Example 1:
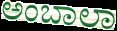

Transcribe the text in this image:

ಅಂಬಾಲಾ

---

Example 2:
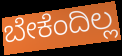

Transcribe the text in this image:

ಬೇಕೆಂದಿಲ್ಲ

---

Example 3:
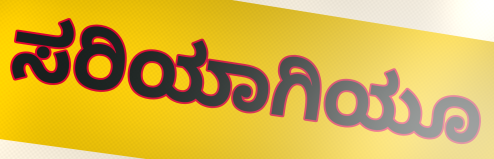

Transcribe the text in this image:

ಸರಿಯಾಗಿಯೂ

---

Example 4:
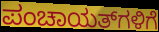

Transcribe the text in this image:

ಪಂಚಾಯತ್‌ಗಳಿಗೆ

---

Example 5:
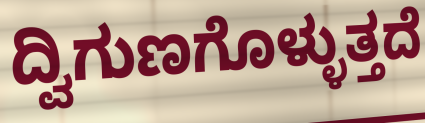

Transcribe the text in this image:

ದ್ವಿಗುಣಗೊಳ್ಳುತ್ತದೆ